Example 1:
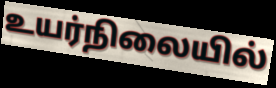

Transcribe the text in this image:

உயர்நிலையில்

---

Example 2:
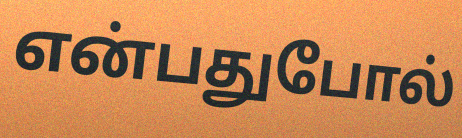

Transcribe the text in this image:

என்பதுபோல்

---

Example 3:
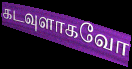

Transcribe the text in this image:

கடவுளாகவோ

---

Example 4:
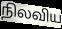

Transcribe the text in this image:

நிலவிய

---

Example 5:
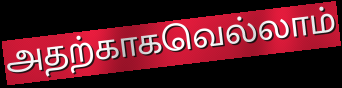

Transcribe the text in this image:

அதற்காகவெல்லாம்